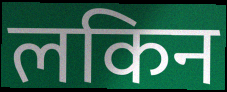
लकिन